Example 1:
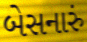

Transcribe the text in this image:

બેસનારું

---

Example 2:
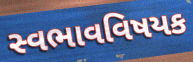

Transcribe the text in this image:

સ્વભાવવિષયક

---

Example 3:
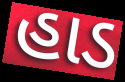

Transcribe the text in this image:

હાડ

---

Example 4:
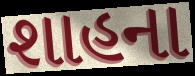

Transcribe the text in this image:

શાહના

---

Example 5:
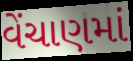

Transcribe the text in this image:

વેંચાણમાં